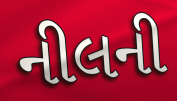
નીલની